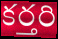
కర్తరి